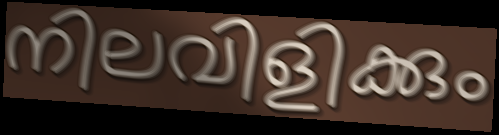
നിലവിളിക്കും